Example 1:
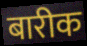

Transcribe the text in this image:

बारीक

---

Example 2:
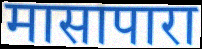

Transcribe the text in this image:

मासापारा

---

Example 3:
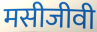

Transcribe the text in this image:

मसीजीवी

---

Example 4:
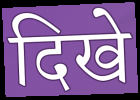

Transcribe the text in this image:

दिखे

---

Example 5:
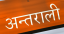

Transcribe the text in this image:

अन्तराली